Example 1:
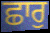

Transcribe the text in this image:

ਛਾਰੁ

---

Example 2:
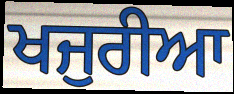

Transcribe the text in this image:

ਖਜੁਰੀਆ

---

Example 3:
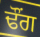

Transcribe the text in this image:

ਢੌਂਗ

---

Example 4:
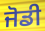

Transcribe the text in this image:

ਜੋਡੀ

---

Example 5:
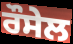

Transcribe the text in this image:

ਰੌਸੇਲ